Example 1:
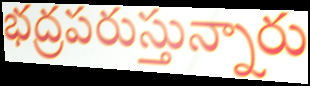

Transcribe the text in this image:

భద్రపరుస్తున్నారు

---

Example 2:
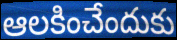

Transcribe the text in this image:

ఆలకించేందుకు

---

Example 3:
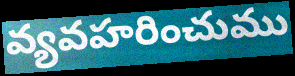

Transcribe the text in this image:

వ్యవహరించుము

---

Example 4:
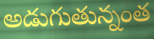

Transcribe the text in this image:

అడుగుతున్నంత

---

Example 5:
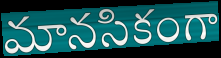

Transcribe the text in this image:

మానసికంగా